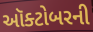
ઑક્ટોબરની